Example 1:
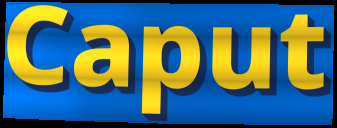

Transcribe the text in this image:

Caput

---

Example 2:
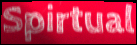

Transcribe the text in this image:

Spirtual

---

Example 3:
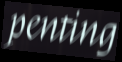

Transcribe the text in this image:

penting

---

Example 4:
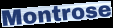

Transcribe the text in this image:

Montrose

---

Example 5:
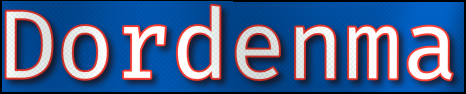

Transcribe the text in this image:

Dordenma